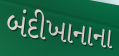
બંદીખાનાના